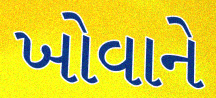
ખોવાને